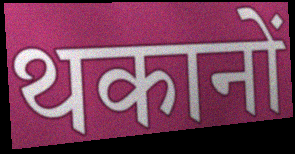
थकानों